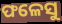
ଫଳେସୁ